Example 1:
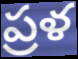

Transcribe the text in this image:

ప్రళ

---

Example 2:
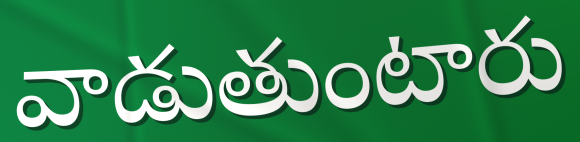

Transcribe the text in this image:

వాడుతుంటారు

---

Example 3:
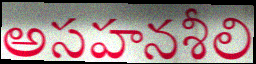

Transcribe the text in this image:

అసహనశీలి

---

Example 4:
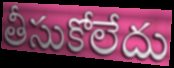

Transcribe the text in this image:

తీసుకోలేదు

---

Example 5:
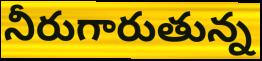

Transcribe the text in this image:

నీరుగారుతున్న